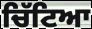
ਚਿੱਟਿਆ